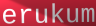
erukum